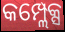
କମ୍ପ୍ଲେକ୍ସ